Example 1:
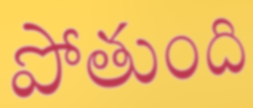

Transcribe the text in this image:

పోతుంది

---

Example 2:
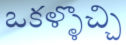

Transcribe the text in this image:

ఒకళ్ళొచ్చి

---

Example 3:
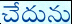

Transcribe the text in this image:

చేదును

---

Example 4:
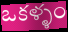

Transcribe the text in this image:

ఒకళ్ళం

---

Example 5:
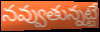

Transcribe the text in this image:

నవ్వుతున్నట్టే